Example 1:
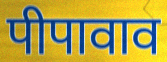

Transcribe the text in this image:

पीपावाव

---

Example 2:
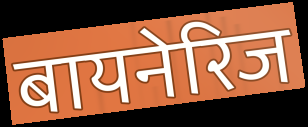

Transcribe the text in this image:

बायनेरिज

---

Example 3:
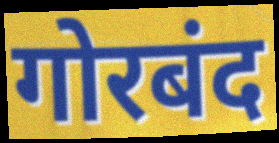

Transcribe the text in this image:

गोरबंद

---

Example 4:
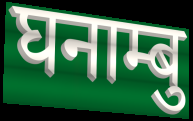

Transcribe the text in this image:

घनाम्बु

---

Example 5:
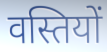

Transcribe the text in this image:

वस्तियों